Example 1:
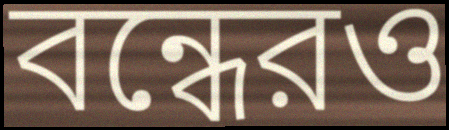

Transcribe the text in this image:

বন্ধেরও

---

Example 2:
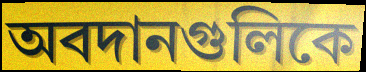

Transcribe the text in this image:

অবদানগুলিকে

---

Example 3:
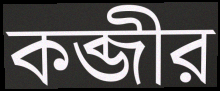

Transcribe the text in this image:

কব্জীর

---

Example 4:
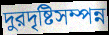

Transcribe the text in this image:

দুরদৃষ্টিসম্পন্ন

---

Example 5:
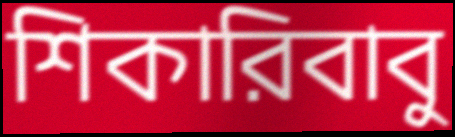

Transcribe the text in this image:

শিকারিবাবু